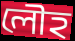
লৌহ